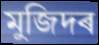
মুজিদৰ